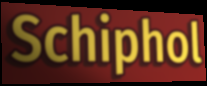
Schiphol